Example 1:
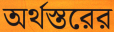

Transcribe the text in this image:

অর্থস্তরের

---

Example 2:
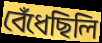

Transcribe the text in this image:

বেঁধেছিলি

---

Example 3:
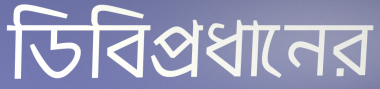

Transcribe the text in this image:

ডিবিপ্রধানের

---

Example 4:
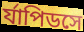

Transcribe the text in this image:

র্যাপিডসে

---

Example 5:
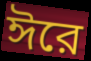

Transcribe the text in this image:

ঈরে